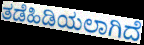
ತಡೆಹಿಡಿಯಲಾಗಿದೆ